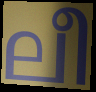
ലീ